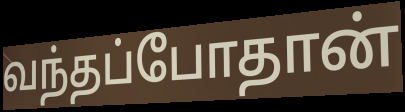
வந்தப்போதான்